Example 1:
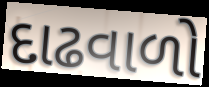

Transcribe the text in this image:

દાઢવાળો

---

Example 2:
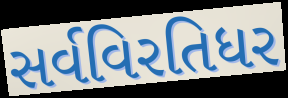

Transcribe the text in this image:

સર્વવિરતિધર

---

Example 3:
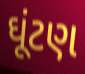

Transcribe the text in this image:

ઘૂંટણ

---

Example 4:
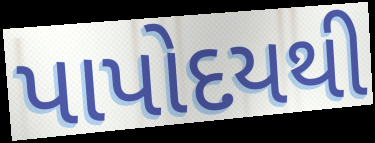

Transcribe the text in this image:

પાપોદયથી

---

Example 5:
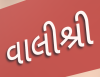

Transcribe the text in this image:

વાલીશ્રી